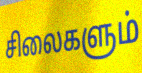
சிலைகளும்